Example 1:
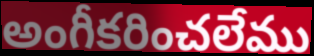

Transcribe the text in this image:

అంగీకరించలేము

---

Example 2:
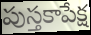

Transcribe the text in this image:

పుస్తకాపేక్ష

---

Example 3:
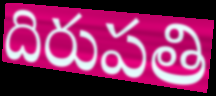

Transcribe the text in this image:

దిరుపతి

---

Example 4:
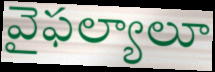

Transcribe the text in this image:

వైఫల్యాలూ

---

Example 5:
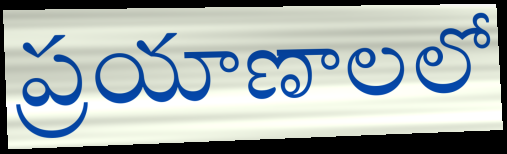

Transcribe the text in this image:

ప్రయాణాలలో